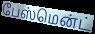
பேஸ்மென்ட்